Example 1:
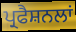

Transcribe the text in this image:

ਪ੍ਰਫੈਸ਼ਨਲਾਂ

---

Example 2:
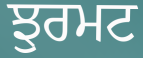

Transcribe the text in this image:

ਝੁਰਮਟ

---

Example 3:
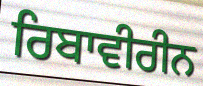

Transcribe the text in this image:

ਰਿਬਾਵੀਰੀਨ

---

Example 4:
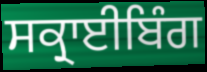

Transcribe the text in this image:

ਸਕ੍ਰਾਈਬਿੰਗ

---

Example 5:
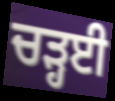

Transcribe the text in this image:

ਚੜ੍ਹਈ